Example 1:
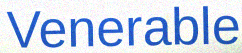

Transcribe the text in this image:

Venerable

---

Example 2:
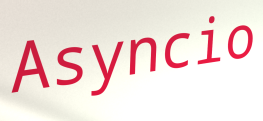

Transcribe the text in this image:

Asyncio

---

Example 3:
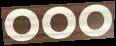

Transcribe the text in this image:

OOO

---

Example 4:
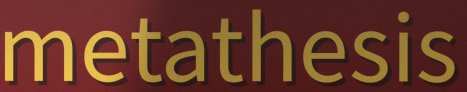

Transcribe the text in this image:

metathesis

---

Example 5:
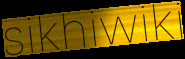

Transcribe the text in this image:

sikhiwiki